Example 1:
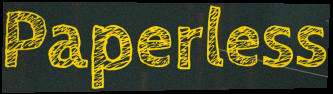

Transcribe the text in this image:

Paperless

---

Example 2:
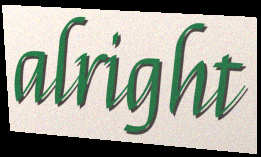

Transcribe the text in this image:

alright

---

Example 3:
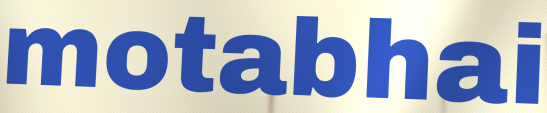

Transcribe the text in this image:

motabhai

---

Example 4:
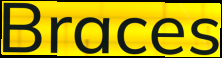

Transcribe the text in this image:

Braces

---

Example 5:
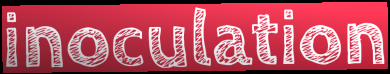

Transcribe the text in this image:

inoculation